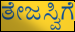
ತೇಜಸ್ವಿಗೆ